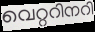
വെറ്ററിനറി